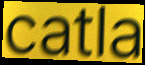
catla